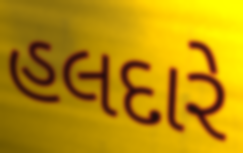
હલદારે